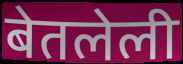
बेतलेली